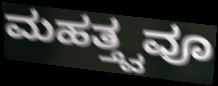
ಮಹತ್ತ್ವವೂ